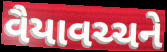
વૈયાવચ્ચને